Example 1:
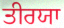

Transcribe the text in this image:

ਤੀਰਯਾ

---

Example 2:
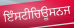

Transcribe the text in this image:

ਇੰਸਟੀਚਿਊਸਨਜ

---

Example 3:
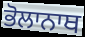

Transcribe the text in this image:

ਭੋਲਾਨਾਥ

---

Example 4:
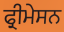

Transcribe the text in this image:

ਫ੍ਰੀਮੇਸਨ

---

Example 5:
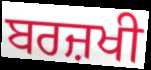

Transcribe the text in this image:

ਬਰਜ਼ਖੀ